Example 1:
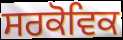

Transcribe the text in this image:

ਸਰਕੋਵਿਕ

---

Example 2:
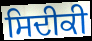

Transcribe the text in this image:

ਸਿਦੀਕੀ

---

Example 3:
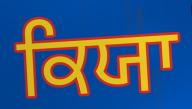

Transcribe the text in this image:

ਕਿਯਾ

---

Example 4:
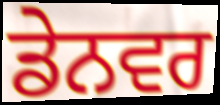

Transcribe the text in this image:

ਡੇਨਵਰ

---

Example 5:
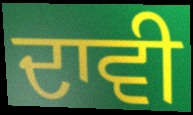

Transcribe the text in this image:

ਦਾਵੀ